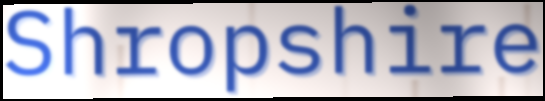
Shropshire